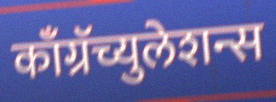
काँग्रॅच्युलेशन्स